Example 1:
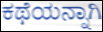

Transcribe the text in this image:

ಕಥೆಯನ್ನಾಗಿ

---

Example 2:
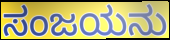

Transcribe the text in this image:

ಸಂಜಯನು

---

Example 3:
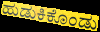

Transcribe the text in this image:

ಹುಡುಕಿಕೊಂಡು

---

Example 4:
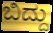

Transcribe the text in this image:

ಬಿದ್ದು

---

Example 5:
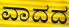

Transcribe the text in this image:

ವಾದದ